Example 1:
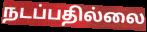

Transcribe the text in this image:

நடப்பதில்லை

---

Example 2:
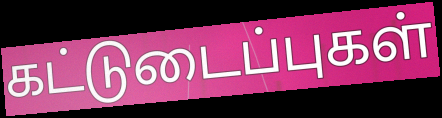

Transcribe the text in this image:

கட்டுடைப்புகள்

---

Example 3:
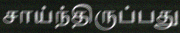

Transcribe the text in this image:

சாய்ந்திருப்பது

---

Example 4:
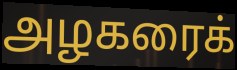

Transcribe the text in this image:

அழகரைக்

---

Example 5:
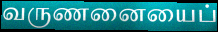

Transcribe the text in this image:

வருணனையைப்